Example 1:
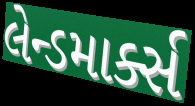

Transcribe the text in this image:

લેન્ડમાર્ક્સ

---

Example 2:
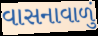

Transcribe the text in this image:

વાસનાવાળું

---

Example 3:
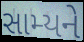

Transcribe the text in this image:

સામ્યને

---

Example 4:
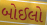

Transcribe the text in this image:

બોઈલો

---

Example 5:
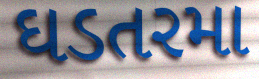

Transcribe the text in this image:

ઘડતરમા